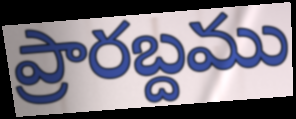
ప్రారబ్దము